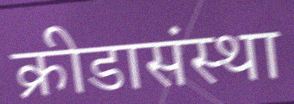
क्रीडासंस्था